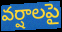
వర్షాలపై